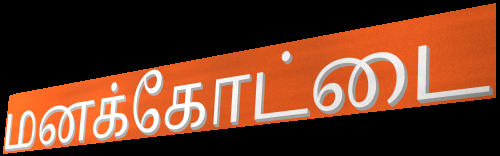
மனக்கோட்டை